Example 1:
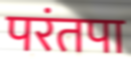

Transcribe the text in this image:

परंतपा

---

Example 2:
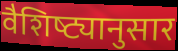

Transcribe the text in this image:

वैशिष्ट्यानुसार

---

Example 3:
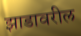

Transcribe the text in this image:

झाडावरील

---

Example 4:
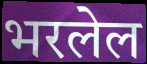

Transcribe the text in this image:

भरलेल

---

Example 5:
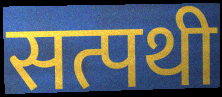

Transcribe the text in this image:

सत्पथी